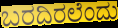
ಬರದಿರಲೆಂದು